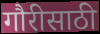
गौरीसाठी